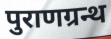
पुराणग्रन्थ